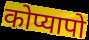
कोप्यापो